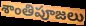
శాంతిపూజలు